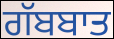
ਗੱਬਬਾਤ